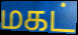
மகட்